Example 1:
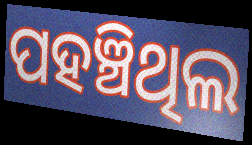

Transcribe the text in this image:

ପହଞ୍ଚିଥିଲ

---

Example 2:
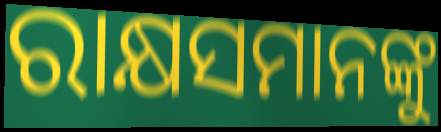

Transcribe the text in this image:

ରାକ୍ଷସମାନଙ୍କୁ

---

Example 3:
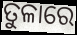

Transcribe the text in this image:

ତୁଳାରେ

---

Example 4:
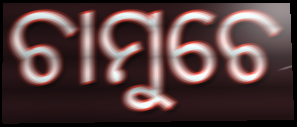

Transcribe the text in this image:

ଚାମୁଚେ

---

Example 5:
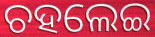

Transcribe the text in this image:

ଚହଲେଇ